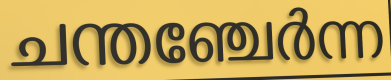
ചന്തഞ്ചേർന്ന